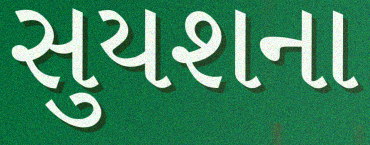
સુયશના